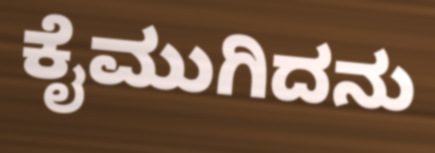
ಕೈಮುಗಿದನು